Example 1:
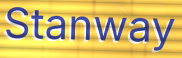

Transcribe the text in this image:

Stanway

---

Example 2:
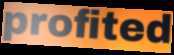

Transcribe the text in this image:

profited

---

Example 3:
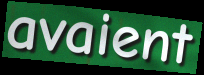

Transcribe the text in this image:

avaient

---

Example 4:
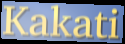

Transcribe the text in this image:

Kakati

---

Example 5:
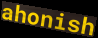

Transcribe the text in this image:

ahonish